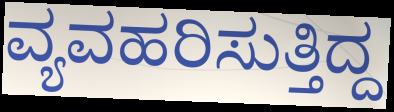
ವ್ಯವಹರಿಸುತ್ತಿದ್ದ